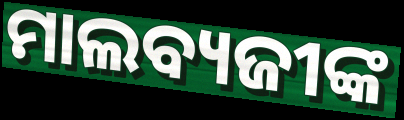
ମାଲବ୍ୟଜୀଙ୍କ